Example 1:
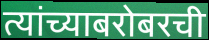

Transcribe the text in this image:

त्यांच्याबरोबरची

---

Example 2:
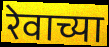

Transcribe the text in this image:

रेवाच्या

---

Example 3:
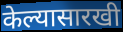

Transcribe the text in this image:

केल्यासारखी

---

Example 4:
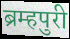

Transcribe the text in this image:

ब्रम्हपुरी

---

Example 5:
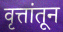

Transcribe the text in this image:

वृत्तांतून